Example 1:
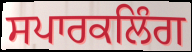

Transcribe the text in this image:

ਸਪਾਰਕਲਿੰਗ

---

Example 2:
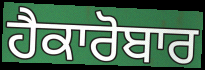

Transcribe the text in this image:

ਹੈਕਾਰੋਬਾਰ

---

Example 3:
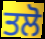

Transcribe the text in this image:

ਤਲੋ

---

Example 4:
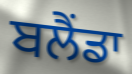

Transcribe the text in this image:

ਬਲੈਂਡਾ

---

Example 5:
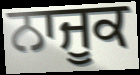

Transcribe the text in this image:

ਨਾਜੂਕ